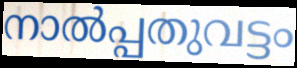
നാൽപ്പതുവട്ടം